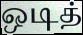
ஒடித்